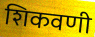
शिकवणी